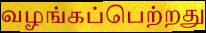
வழங்கப்பெற்றது